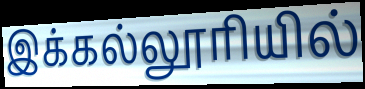
இக்கல்லூரியில்